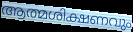
ആത്മശിക്ഷണവും